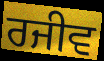
ਰਜੀਵ